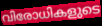
വിരോധികളുടെ